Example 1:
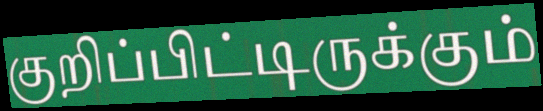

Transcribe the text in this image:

குறிப்பிட்டிருக்கும்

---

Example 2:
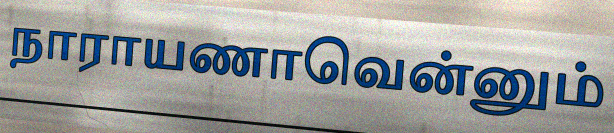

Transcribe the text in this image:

நாராயணாவென்னும்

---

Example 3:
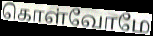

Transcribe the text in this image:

கொள்வோமே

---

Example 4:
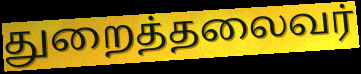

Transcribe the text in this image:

துறைத்தலைவர்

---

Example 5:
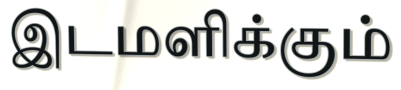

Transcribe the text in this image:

இடமளிக்கும்